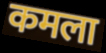
कमला